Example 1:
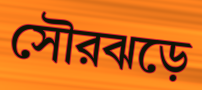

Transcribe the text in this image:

সৌরঝড়ে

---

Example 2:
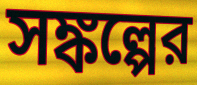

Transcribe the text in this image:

সঙ্কল্পের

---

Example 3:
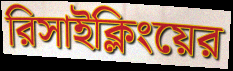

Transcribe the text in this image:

রিসাইক্লিংয়ের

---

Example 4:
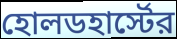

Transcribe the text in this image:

হোলডহার্স্টের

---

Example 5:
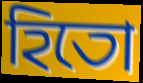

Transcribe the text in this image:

হিতো